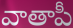
వాతాపీ